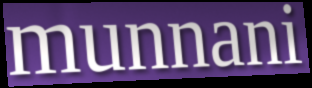
munnani